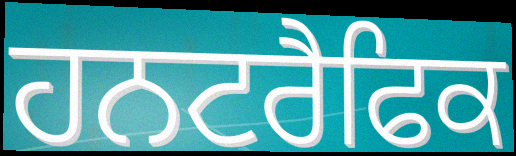
ਹਨਟਰੈਫਿਕ